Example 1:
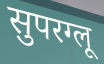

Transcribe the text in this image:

सुपरग्लू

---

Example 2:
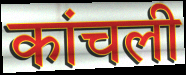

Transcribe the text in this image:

कांचली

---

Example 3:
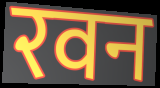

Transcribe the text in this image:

रवन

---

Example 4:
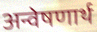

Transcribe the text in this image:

अन्वेषणार्थ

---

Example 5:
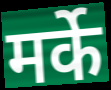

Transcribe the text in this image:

मर्के